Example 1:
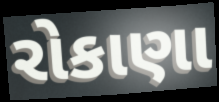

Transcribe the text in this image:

રોકાણા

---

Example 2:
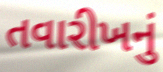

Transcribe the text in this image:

તવારીખનું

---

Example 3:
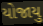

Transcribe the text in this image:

યોજાયુ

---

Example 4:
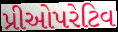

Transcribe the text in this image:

પ્રીઓપરેટિવ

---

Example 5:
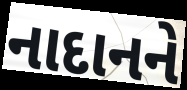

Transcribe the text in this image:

નાદાનને